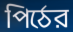
পিঠের